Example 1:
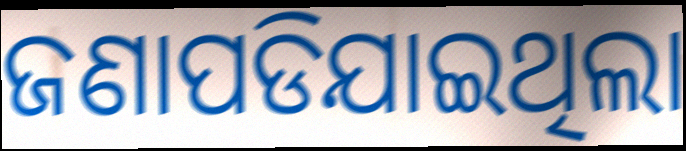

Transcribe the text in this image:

ଜଣାପଡିଯାଇଥିଲା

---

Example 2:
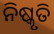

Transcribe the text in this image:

ନିଷ୍କୃତି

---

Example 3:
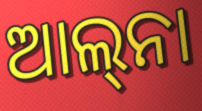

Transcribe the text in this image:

ଆଲ୍‍ନା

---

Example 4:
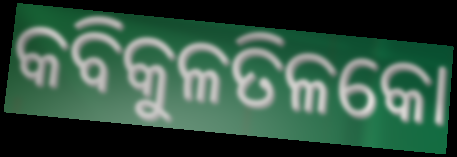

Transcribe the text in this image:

କବିକୁଳତିଳକୋ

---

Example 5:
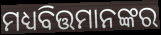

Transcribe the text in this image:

ମଧ୍ୟବିତ୍ତମାନଙ୍କର